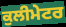
ਕੁਲੀਮੇਟਰ